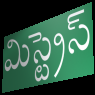
మిస్ట్రెస్